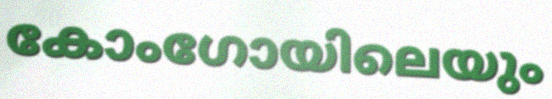
കോംഗോയിലെയും